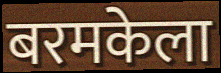
बरमकेला